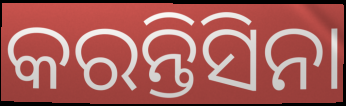
କରନ୍ତିସିନା